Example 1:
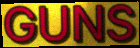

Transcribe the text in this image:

GUNS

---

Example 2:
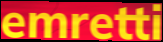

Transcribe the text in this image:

emretti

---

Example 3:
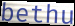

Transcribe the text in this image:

bethu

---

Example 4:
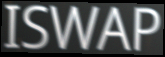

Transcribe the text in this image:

ISWAP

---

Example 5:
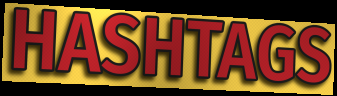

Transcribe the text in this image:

HASHTAGS